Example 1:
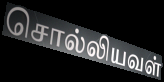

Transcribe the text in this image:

சொல்லியவள்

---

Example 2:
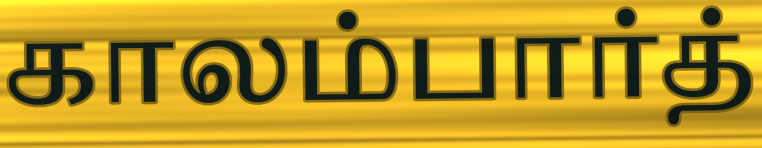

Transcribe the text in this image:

காலம்பார்த்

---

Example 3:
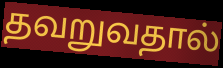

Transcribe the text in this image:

தவறுவதால்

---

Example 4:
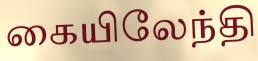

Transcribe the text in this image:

கையிலேந்தி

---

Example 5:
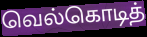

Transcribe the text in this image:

வெல்கொடித்